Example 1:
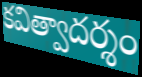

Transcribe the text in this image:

కవిత్వాదర్శం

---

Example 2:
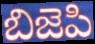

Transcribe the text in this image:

బిజెపి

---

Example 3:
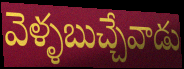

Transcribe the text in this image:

వెళ్ళబుచ్చేవాడు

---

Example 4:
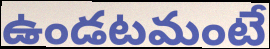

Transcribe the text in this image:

ఉండటమంటే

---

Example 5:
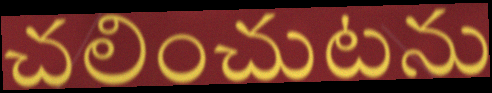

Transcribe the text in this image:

చలించుటను